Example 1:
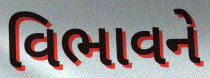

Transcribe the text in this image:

વિભાવને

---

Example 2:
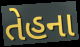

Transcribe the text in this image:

તેહના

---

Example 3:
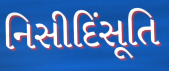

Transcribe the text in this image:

નિસીદિંસૂતિ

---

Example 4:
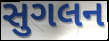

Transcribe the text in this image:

સુગલન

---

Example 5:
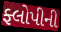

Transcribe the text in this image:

ફ્લોપીની